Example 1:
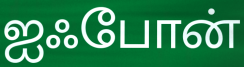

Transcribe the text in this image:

ஐஃபோன்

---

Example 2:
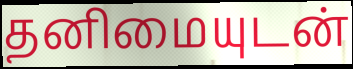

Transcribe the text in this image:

தனிமையுடன்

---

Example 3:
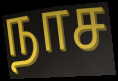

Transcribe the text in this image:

நாச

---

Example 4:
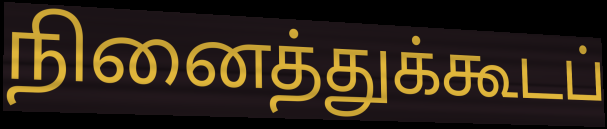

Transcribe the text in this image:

நினைத்துக்கூடப்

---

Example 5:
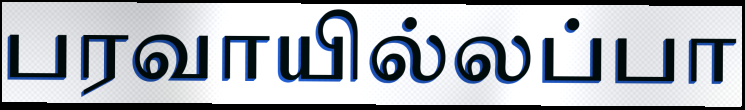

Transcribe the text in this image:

பரவாயில்லப்பா